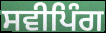
ਸਵੀਪਿੰਗ